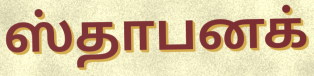
ஸ்தாபனக்